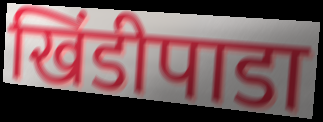
खिंडीपाडा